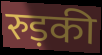
रुड़की